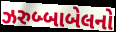
ઝરુબ્બાબેલનો